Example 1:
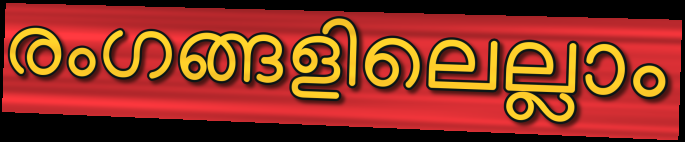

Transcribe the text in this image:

രംഗങ്ങളിലെല്ലാം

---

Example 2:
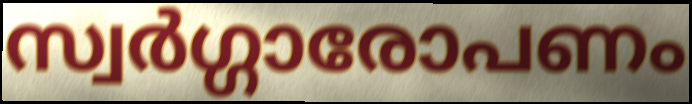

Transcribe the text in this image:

സ്വർഗ്ഗാരോപണം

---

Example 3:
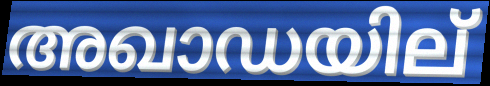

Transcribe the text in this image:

അഖാഡയില്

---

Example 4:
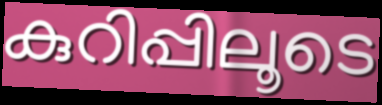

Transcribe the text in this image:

കുറിപ്പിലൂടെ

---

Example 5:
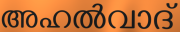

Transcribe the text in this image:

അഹൽവാദ്